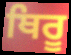
ਥਿਰੂ